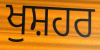
ਖੁਸ਼ਹਰ